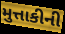
મુત્તાકીની